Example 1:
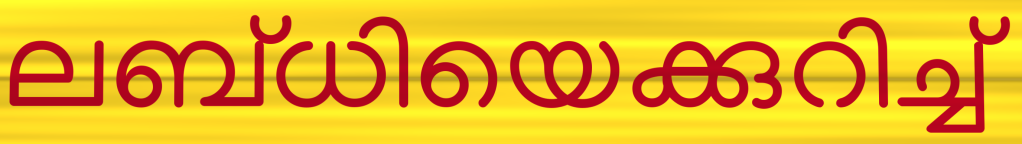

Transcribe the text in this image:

ലബ്ധിയെക്കുറിച്ച്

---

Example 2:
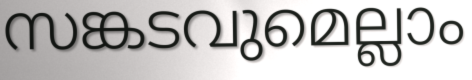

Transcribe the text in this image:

സങ്കടവുമെല്ലാം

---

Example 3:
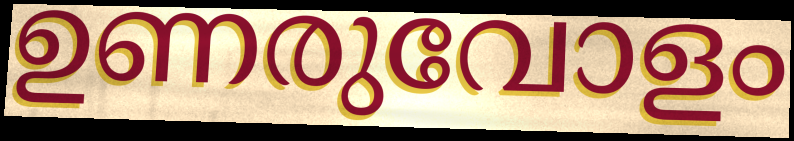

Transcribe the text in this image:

ഉണരുവോളം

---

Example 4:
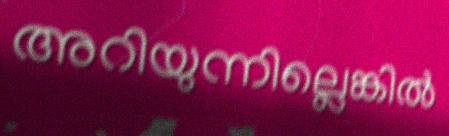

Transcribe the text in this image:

അറിയുന്നില്ലെങ്കിൽ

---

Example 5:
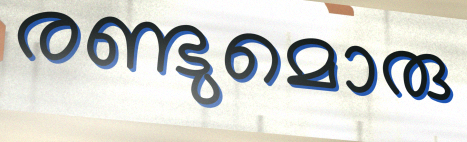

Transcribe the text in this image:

രണ്ടുമൊരു